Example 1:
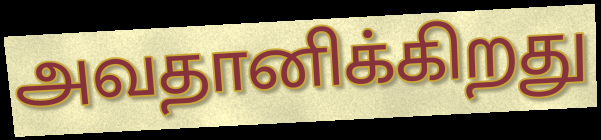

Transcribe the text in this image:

அவதானிக்கிறது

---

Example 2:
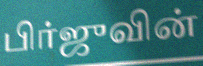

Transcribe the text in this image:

பிர்ஜுவின்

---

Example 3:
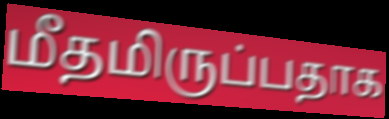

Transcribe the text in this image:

மீதமிருப்பதாக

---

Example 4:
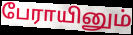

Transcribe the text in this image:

பேராயினும்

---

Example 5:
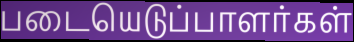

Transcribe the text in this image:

படையெடுப்பாளர்கள்